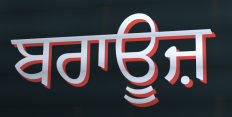
ਬਰਾਊਜ਼